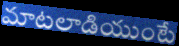
మాటలాడియుంటే